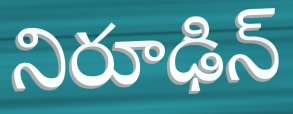
నిరూఢిన్